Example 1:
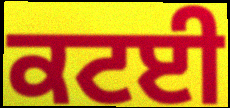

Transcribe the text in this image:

ਕਟਈ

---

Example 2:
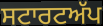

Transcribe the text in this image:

ਸਟਾਰਟਅੱਪ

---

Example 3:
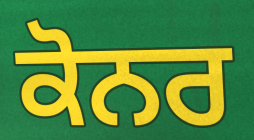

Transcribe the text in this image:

ਕੋਨਰ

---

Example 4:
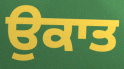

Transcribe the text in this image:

ਉਕਾਤ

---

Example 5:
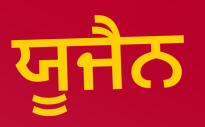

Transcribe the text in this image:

ਯੂਜੈਨ